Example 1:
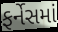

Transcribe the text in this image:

ફર્નેસમાં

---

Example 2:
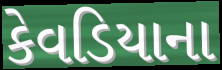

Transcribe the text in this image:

કેવડિયાના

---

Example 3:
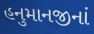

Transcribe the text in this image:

હનુમાનજીનાં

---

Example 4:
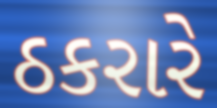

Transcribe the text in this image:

ઠકરારે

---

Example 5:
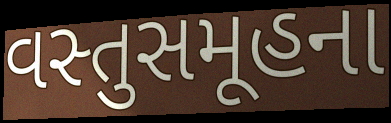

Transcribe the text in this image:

વસ્તુસમૂહના